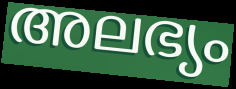
അലഭ്യം